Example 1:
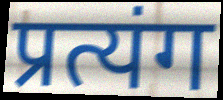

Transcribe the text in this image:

प्रत्यंग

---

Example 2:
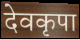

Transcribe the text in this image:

देवकृपा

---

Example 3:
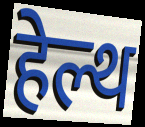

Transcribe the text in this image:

हेल्थ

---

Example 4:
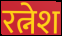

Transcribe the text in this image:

रत्नेश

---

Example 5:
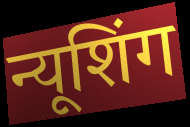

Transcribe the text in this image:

न्यूशिंग